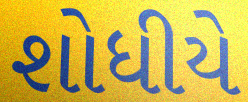
શોધીયે